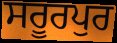
ਸਰੂਰਪੁਰ